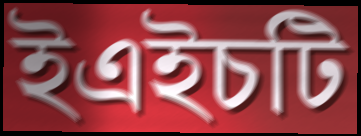
ইএইচটি